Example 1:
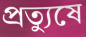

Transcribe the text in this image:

প্রত্যুষে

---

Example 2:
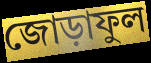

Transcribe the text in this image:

জোড়াফুল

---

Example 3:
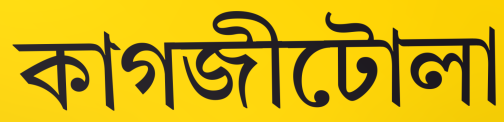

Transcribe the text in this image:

কাগজীটোলা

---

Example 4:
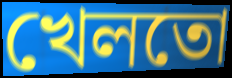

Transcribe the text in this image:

খেলতো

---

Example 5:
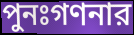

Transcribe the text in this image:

পুনঃগণনার